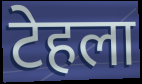
टेहला